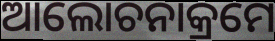
ଆଲୋଚନାକ୍ରମେ